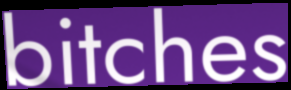
bitches